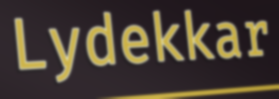
Lydekkar